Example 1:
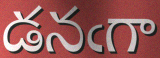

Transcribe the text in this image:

డనఁగా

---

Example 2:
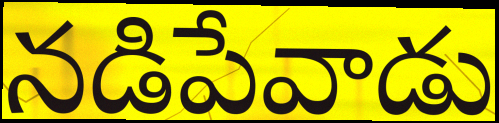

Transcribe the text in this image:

నడిపేవాడు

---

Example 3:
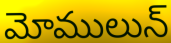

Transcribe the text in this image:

మోములున్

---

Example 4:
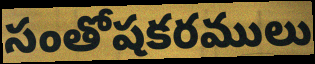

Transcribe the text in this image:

సంతోషకరములు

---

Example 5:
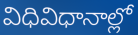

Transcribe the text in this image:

విధివిధానాల్లో